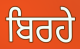
ਬਿਰਹੇ